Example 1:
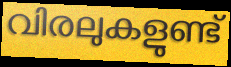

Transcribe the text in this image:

വിരലുകളുണ്ട്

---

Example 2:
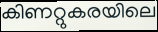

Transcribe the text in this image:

കിണറ്റുകരയിലെ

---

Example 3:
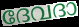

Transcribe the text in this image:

ദേവദാ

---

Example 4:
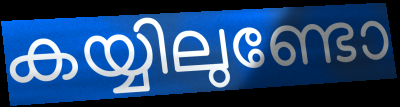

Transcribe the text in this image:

കയ്യിലുണ്ടോ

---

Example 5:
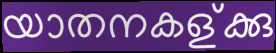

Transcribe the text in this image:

യാതനകള്ക്കു